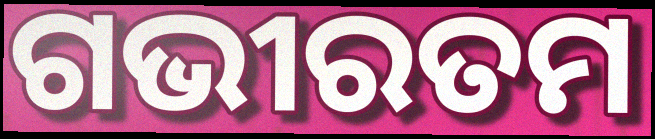
ଗଭୀରତମ